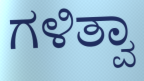
ಗಳಿತ್ವಾ